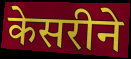
केसरीने